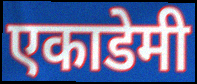
एकाडेमी